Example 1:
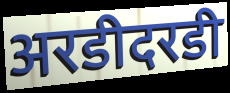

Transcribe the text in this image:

अरडीदरडी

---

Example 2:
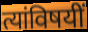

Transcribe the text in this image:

त्यांविषयीं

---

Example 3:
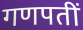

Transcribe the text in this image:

गणपतीं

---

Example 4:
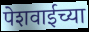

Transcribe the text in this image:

पेशवाईच्या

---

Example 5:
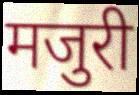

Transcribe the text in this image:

मजुरी